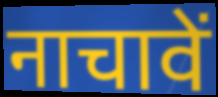
नाचावें